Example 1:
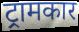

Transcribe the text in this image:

ट्रामकार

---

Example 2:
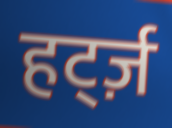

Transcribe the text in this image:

हर्ट्ज़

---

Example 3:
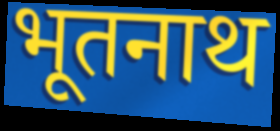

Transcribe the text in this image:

भूतनाथ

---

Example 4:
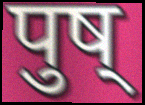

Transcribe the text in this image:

पुष्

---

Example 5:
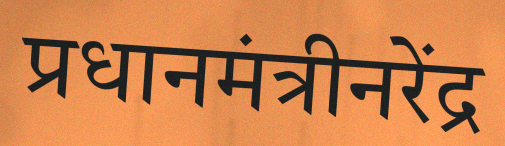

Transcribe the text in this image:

प्रधानमंत्रीनरेंद्र